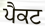
ਪੈਕਟ